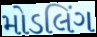
મોડલિંગ